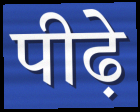
पीढ़े